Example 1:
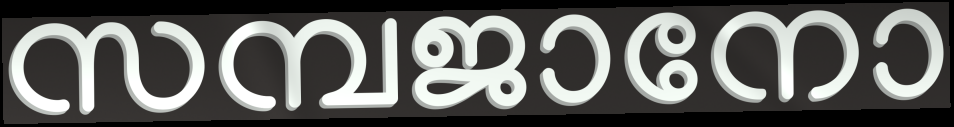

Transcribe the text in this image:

സമ്പജാനോ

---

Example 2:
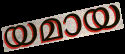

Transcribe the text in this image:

യമായ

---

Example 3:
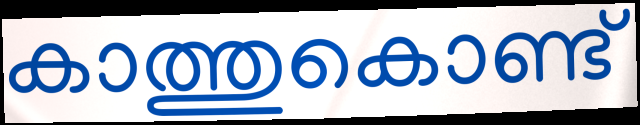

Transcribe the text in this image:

കാത്തുകൊണ്ട്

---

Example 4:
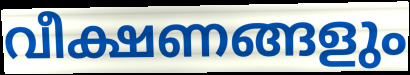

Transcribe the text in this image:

വീക്ഷണങ്ങളും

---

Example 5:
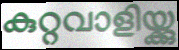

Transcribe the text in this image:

കുറ്റവാളിയ്ക്കു